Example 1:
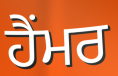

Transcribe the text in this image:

ਹੈਂਮਰ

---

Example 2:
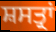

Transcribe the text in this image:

ਸ਼ਸਤ੍ਰਾਂ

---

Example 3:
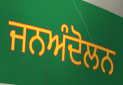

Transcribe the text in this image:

ਜਨਅੰਦੋਲਨ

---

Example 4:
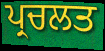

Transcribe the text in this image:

ਪ੍ਰਚਲਤ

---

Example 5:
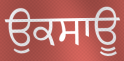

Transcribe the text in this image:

ਉਕਸਾਊ